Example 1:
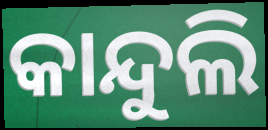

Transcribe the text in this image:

କାନ୍ଦୁଲି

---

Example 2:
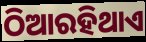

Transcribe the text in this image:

ଠିଆରହିଥାଏ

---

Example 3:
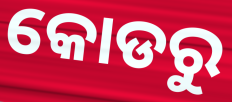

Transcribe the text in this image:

କୋଡରୁ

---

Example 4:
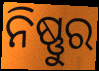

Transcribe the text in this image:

ନିଷ୍ଣୁର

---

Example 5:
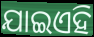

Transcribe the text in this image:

ଯାଇଏହି